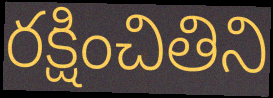
రక్షించితిని